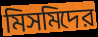
মিসমিদের